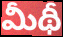
మీథీ